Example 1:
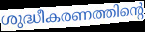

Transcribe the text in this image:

ശുദ്ധീകരണത്തിന്റെ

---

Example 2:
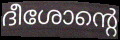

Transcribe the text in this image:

ദീശോന്റെ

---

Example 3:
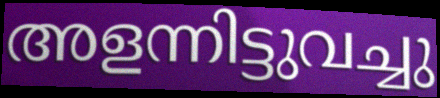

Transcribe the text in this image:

അളന്നിട്ടുവച്ചു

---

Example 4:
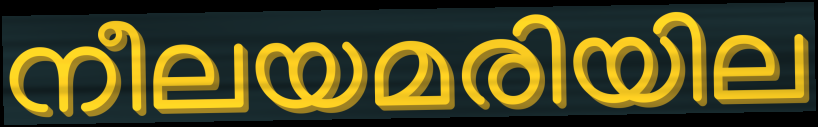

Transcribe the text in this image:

നീലയമരിയില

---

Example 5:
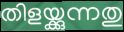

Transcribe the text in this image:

തിളയ്ക്കുന്നതു